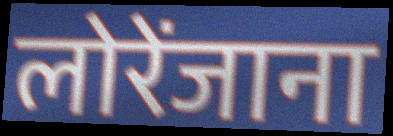
लोरेंजाना